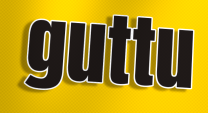
guttu